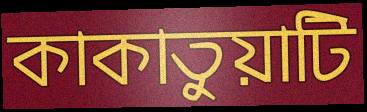
কাকাতুয়াটি